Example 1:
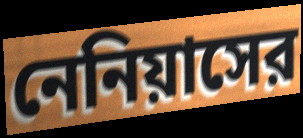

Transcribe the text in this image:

নেনিয়াসের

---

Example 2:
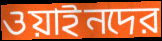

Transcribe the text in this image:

ওয়াইনদের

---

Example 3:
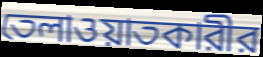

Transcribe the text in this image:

তেলাওয়াতকারীর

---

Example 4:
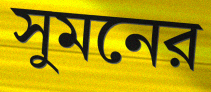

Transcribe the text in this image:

সুমনের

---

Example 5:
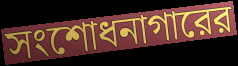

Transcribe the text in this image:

সংশোধনাগারের